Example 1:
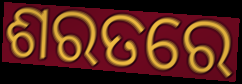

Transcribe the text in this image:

ଶରତରେ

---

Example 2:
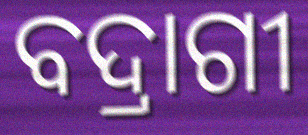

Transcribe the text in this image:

ବଦ୍ରାଗୀ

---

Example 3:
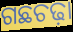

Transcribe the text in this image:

ଗଛଚଢ଼ା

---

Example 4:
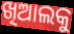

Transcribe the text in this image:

ଖିଆଲକୁ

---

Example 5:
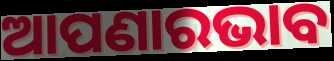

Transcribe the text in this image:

ଆପଣାରଭାବ